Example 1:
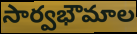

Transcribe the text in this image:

సార్వభౌమాల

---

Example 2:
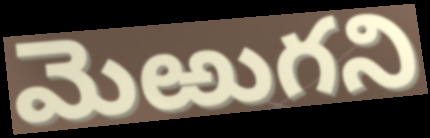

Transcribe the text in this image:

మెఱుగని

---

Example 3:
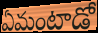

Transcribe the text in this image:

ఏమంటాడో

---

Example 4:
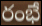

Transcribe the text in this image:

రంభే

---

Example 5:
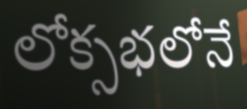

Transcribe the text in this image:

లోక్సభలోనే